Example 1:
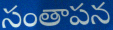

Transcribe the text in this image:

సంతాపన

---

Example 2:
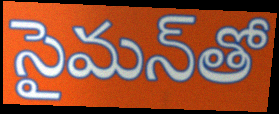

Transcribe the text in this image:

సైమన్‌తో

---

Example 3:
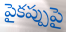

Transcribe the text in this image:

పైకప్పుపై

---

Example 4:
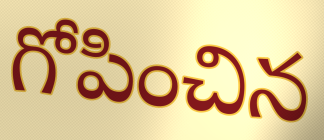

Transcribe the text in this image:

గోపించిన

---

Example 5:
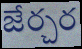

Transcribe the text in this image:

జేర్చర